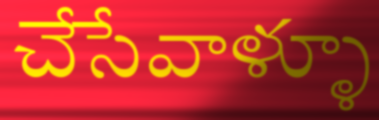
చేసేవాళ్ళూ